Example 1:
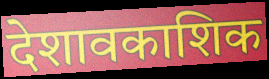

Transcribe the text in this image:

देशावकाशिक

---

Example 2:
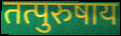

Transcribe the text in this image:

तत्पुरुषाय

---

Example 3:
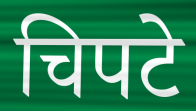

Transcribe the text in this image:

चिपटे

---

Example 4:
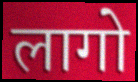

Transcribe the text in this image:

लागो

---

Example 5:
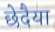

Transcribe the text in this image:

छेदैया